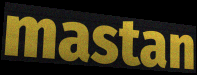
mastan